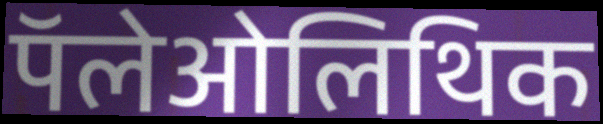
पॅलेओलिथिक